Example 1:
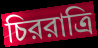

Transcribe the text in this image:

চিররাত্রি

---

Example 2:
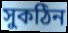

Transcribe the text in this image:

সুকঠিন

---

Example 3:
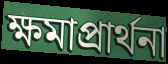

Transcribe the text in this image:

ক্ষমাপ্রার্থনা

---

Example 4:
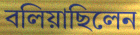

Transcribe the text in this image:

বলিয়াছিলেন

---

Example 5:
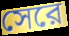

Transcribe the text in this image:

সেরে